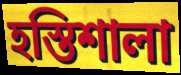
হস্তিশালা